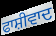
ਫਾਸ਼ੀਵਾਦ